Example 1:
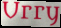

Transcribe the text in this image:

Urry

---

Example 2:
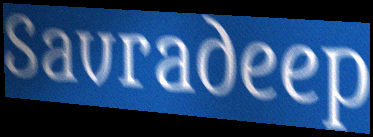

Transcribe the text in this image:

Sauradeep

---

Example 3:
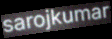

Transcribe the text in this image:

sarojkumar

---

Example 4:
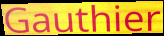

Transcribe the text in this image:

Gauthier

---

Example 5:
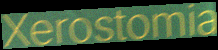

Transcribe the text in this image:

Xerostomia